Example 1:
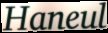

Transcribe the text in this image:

Haneul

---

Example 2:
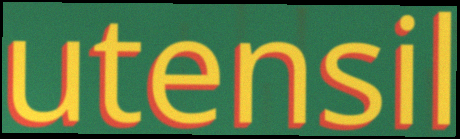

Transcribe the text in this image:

utensil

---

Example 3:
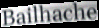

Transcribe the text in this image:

Bailhache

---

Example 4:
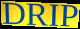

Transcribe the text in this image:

DRIP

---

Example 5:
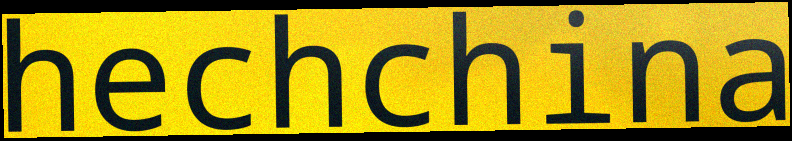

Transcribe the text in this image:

hechchina